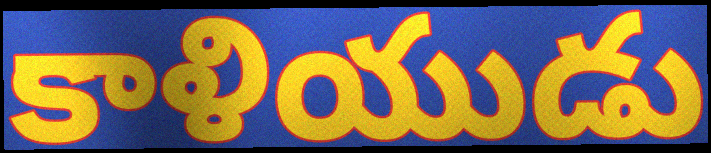
కాళియుడు